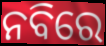
ନବିରେ